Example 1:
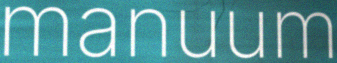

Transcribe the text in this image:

manuum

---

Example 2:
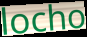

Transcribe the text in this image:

locho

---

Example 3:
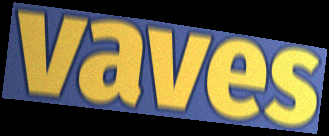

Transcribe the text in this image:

vaves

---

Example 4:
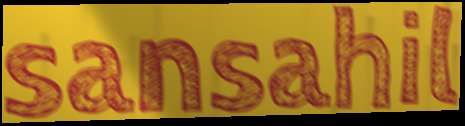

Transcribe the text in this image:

sansahil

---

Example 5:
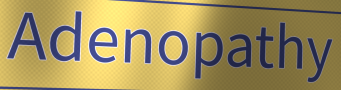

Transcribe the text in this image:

Adenopathy